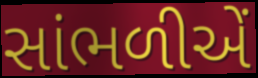
સાંભળીએં